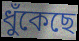
ধুঁকেছে